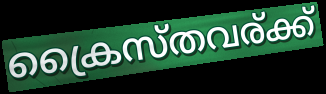
ക്രൈസ്തവര്ക്ക്